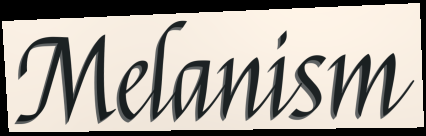
Melanism